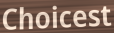
Choicest